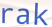
rak